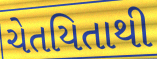
ચેતયિતાથી